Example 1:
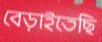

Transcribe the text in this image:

বেড়াইতেছি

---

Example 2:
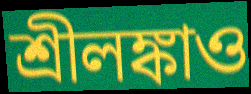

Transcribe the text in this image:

শ্রীলঙ্কাও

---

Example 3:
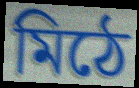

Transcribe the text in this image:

মিঠে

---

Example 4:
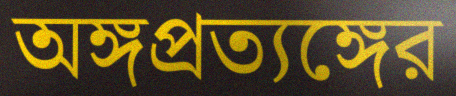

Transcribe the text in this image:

অঙ্গপ্রত্যঙ্গের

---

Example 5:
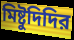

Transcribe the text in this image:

মিষ্টুদিদির